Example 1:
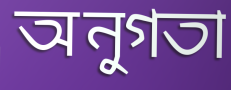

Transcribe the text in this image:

অনুগতা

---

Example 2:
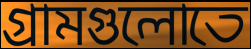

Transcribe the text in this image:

গ্রামগুলোতে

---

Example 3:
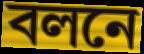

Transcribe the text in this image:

বলনে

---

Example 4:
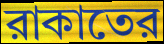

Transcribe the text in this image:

রাকাতের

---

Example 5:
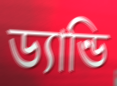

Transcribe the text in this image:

ড্যান্ডি